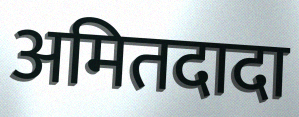
अमितदादा